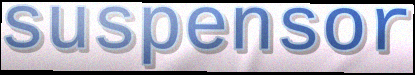
suspensor